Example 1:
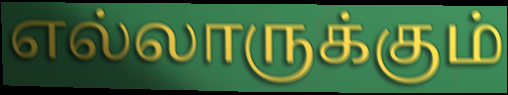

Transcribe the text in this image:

எல்லாருக்கும்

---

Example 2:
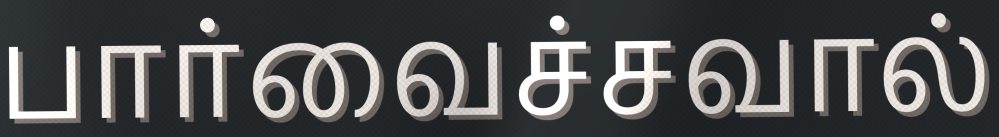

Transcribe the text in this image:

பார்வைச்சவால்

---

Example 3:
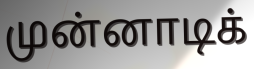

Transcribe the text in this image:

முன்னாடிக்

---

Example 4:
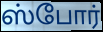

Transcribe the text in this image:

ஸ்போர்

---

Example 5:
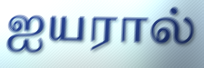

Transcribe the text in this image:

ஐயரால்